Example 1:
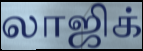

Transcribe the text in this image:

லாஜிக்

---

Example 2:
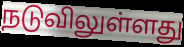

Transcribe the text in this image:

நடுவிலுள்ளது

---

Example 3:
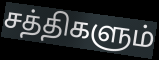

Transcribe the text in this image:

சத்திகளும்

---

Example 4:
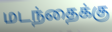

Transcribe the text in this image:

மடந்தைக்கு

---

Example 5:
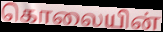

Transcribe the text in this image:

கொலையின்